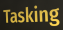
Tasking